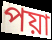
পয়া